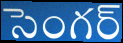
సెంగర్